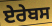
ਏਰੇਬਸ